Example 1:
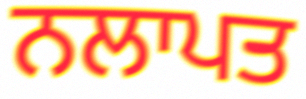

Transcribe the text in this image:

ਨਲਾਪਤ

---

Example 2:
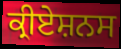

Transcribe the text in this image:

ਕ੍ਰੀਏਸ਼ਨਸ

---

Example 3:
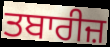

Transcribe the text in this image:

ਤਬਾਰੀਜ਼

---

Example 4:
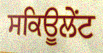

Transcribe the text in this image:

ਸਕਿਊਲੇਂਟ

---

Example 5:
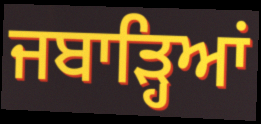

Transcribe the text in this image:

ਜਬਾੜ੍ਹਿਆਂ